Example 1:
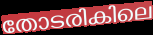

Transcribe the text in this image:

തോടരികിലെ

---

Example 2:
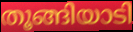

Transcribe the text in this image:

തൂങ്ങിയാടി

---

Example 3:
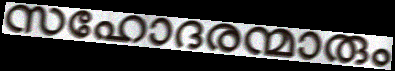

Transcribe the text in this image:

സഹോദരന്മാരും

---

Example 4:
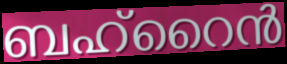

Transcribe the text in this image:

ബഹ്റൈൻ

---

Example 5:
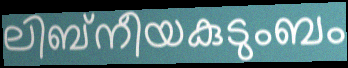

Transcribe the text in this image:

ലിബ്നീയകുടുംബം